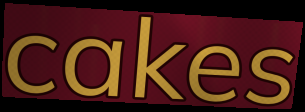
cakes